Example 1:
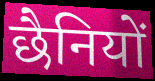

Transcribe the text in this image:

छैनियों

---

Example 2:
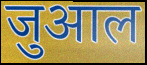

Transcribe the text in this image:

जुआल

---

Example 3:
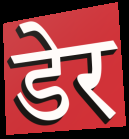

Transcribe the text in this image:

डेर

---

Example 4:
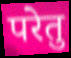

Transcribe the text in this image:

परेतु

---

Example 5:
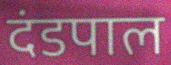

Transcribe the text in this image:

दंडपाल